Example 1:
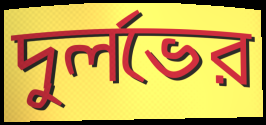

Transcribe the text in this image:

দুর্লভের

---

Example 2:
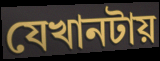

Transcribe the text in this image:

যেখানটায়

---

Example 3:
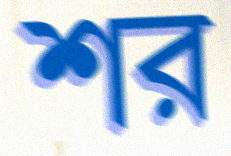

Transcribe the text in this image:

শর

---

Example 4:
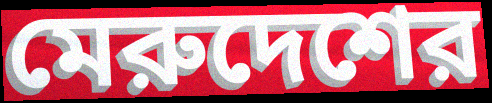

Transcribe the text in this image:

মেরুদেশের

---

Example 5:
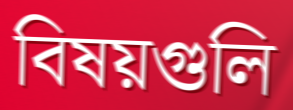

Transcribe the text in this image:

বিষয়গুলি